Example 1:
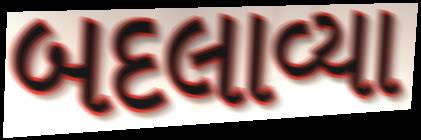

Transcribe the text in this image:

બદલાવ્યા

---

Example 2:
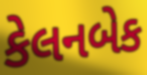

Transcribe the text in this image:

કેલનબેક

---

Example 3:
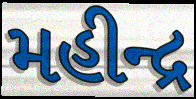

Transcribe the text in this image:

મહીન્દ્ર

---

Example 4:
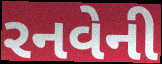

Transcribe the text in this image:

રનવેની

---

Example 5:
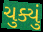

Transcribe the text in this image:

ચુક્યું